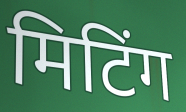
मिटिंग